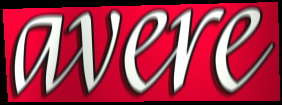
avere